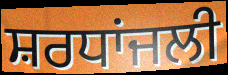
ਸ਼ਰਧਾਂਜਲੀ